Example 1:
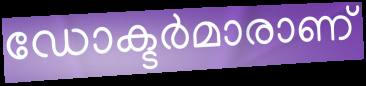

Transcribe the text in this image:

ഡോക്ടർമാരാണ്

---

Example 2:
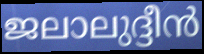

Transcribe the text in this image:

ജലാലുദ്ദീൻ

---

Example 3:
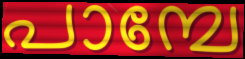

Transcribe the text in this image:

പാമ്പേ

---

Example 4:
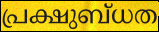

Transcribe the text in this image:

പ്രക്ഷുബ്ധത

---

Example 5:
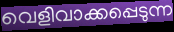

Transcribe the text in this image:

വെളിവാക്കപ്പെടുന്ന